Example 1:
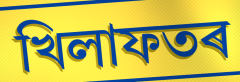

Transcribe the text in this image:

খিলাফতৰ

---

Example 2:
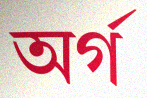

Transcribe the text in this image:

অৰ্গ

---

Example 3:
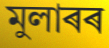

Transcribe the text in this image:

মুলাৰৰ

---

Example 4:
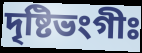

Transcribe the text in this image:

দৃষ্টিভংগীঃ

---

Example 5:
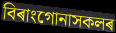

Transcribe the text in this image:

বিৰাংগোনাসকলৰ